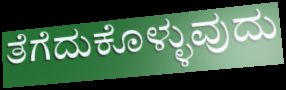
ತೆಗೆದುಕೊಳ್ಳುವುದು